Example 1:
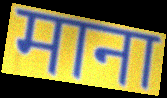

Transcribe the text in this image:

माना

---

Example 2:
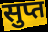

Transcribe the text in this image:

सुप्त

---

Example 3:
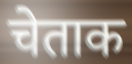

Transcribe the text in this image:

चेताक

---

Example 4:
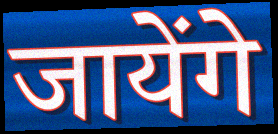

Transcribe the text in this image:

जायेंगे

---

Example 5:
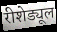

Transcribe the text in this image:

रीशेड्यूल